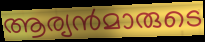
ആര്യൻമാരുടെ